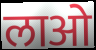
लाओ